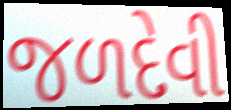
જળદેવી